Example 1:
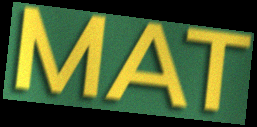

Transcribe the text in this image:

MAT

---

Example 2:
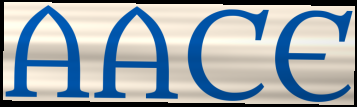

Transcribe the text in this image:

AACE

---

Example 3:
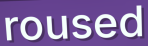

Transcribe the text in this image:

roused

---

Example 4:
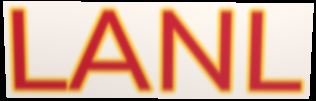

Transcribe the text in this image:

LANL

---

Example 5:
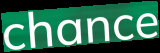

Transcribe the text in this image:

chance